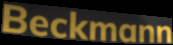
Beckmann